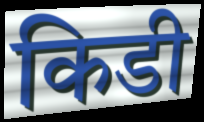
किडी